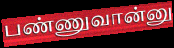
பண்ணுவான்னு